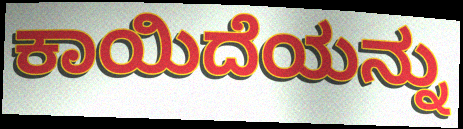
ಕಾಯಿದೆಯನ್ನು